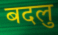
बदलु